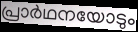
പ്രാർഥനയോടും